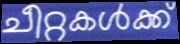
ചീറ്റകൾക്ക്